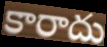
కారాదు